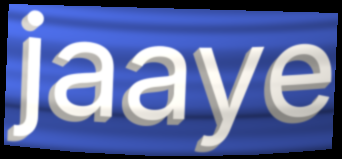
jaaye